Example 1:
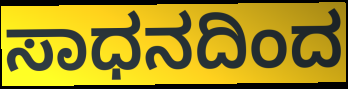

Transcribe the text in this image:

ಸಾಧನದಿಂದ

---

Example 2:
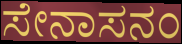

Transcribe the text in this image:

ಸೇನಾಸನಂ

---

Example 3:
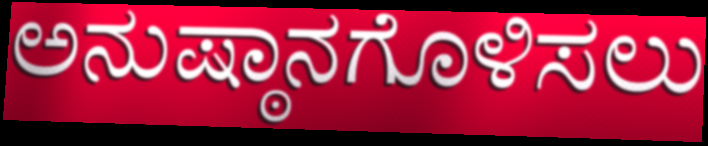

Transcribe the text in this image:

ಅನುಷ್ಠಾನಗೊಳಿಸಲು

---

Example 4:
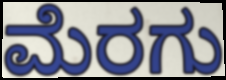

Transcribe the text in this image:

ಮೆರಗು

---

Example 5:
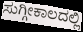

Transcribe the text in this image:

ಸುಗ್ಗೀಕಾಲದಲ್ಲಿ